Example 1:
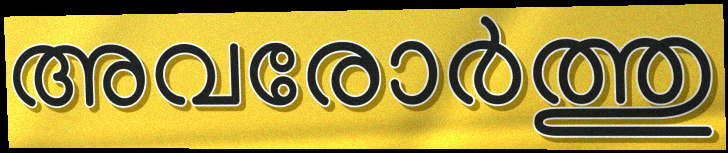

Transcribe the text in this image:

അവരോർത്തു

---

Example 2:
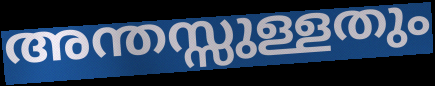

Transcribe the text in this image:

അന്തസ്സുള്ളതും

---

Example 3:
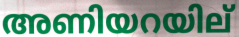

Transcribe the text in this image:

അണിയറയില്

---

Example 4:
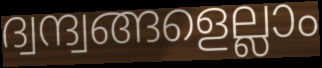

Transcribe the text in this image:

ദ്വന്ദ്വങ്ങളെല്ലാം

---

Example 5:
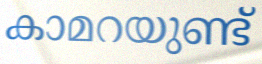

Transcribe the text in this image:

കാമറയുണ്ട്